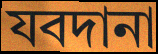
যবদানা